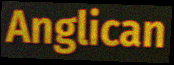
Anglican